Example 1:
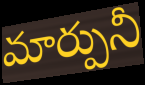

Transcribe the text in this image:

మార్పునీ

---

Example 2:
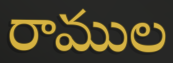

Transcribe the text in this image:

రాముల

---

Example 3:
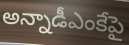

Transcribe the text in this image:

అన్నాడీఎంకేపై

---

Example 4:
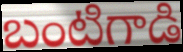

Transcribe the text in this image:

బంటిగాడి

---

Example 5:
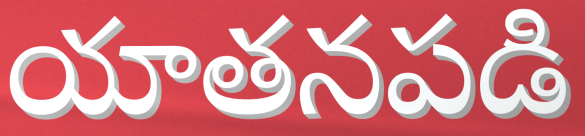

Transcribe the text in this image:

యాతనపడి